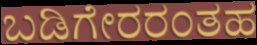
ಬಡಿಗೇರರಂತಹ